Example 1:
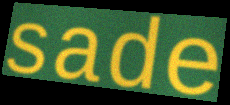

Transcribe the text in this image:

sade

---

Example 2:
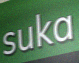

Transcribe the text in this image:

suka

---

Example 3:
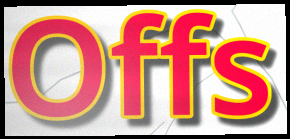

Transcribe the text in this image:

Offs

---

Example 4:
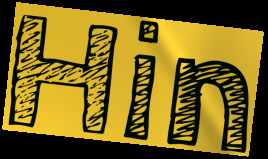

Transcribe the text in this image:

Hin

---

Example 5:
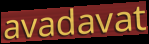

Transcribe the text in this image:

avadavat